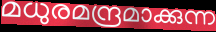
മധുരമന്ദ്രമാക്കുന്ന